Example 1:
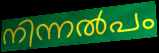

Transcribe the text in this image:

നിന്നൽപം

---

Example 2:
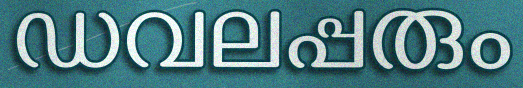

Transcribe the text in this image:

ഡവലപ്പരും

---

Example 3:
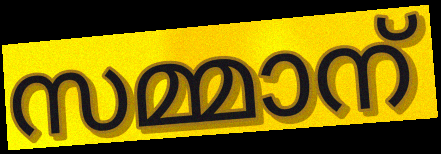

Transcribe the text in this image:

സമ്മാന്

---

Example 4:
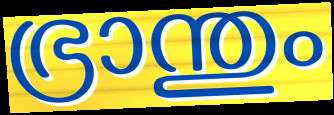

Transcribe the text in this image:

ഭ്രാന്തും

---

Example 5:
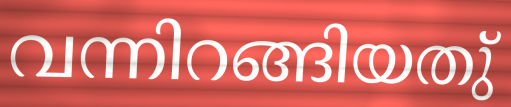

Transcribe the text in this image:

വന്നിറങ്ങിയതു്